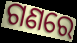
ଗଣରେ